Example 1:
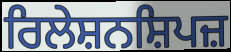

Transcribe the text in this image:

ਰਿਲੇਸ਼ਨਸ਼ਿਪਜ਼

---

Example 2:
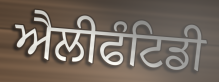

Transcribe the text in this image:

ਐਲੀਫੰਟਿਡੀ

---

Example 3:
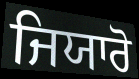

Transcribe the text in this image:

ਜਿਯਾਰੋ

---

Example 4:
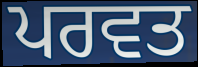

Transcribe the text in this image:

ਪਰਵਤ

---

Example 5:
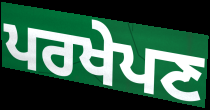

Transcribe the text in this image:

ਪਰਖੇਪਣ